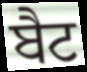
ਬੈਟ